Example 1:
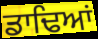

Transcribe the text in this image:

ਡਾਢਿਆਂ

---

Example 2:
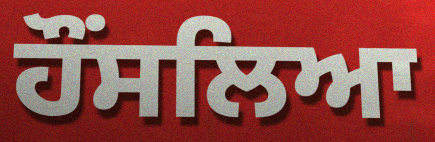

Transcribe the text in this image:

ਹੌਂਸਲਿਆ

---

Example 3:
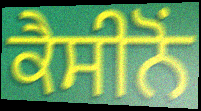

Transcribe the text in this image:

ਕੈਸੀਨੋਂ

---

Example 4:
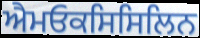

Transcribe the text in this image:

ਐਮਓਕਸਿਸਿਲਿਨ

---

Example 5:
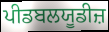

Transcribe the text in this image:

ਪੀਡਬਲਯੂਡੀਜ਼